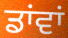
ਡਾਂਵਾਂ